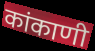
कांकाणी